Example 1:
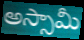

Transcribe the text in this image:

అస్సామీ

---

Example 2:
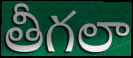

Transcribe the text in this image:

తీగలా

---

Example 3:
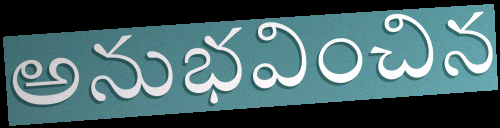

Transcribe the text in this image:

అనుభవించిన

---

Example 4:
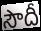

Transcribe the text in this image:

సౌదీ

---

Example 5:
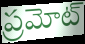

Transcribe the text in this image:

ప్రమోట్